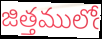
జిత్తములోఁ